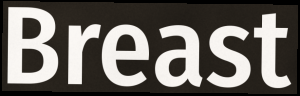
Breast